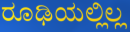
ರೂಢಿಯಲ್ಲಿಲ್ಲ